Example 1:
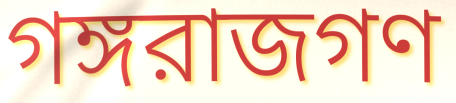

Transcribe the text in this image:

গঙ্গরাজগণ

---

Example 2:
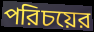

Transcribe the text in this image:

পরিচয়ের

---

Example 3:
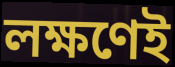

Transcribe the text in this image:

লক্ষণেই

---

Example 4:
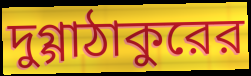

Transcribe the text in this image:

দুগ্গাঠাকুরের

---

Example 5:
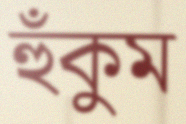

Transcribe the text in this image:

হুঁকুম